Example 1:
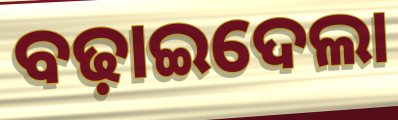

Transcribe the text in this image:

ବଢ଼ାଇଦେଲା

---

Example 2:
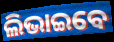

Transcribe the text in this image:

ଲିଭାଇବେ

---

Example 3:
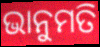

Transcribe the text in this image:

ଭାନୁମତି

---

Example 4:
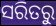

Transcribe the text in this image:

ସରିତରୁ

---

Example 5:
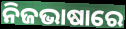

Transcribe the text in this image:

ନିଜଭାଷାରେ